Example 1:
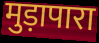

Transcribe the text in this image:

मुड़ापारा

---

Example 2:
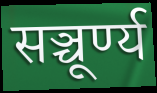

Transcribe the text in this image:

सञ्चूर्ण्य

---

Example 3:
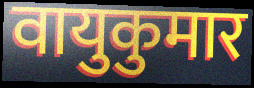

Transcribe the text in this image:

वायुकुमार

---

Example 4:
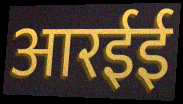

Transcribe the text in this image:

आरईई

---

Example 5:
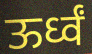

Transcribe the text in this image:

ऊर्ध्वं